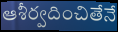
ఆశీర్వదించితేనే